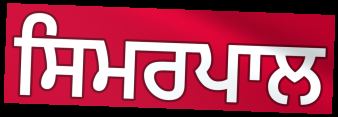
ਸਿਮਰਪਾਲ